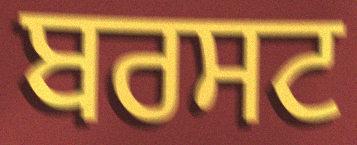
ਬਰਸਟ